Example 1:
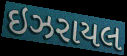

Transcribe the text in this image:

ઇઝરાયલ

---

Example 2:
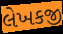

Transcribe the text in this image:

લેખકજી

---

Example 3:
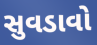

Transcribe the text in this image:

સુવડાવો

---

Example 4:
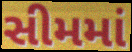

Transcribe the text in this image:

સીમમાં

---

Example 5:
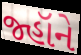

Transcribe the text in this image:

જ્હૉને